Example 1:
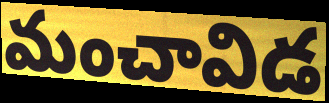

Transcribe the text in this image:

మంచావిడ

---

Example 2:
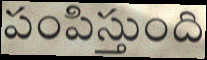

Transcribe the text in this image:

పంపిస్తుంది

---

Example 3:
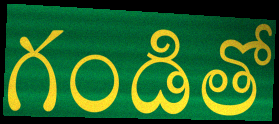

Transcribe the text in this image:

గండితో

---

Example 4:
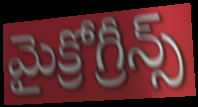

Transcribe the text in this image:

మైక్రోగ్రీన్స్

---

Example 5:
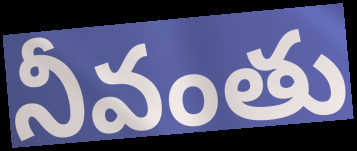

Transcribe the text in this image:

నీవంతు